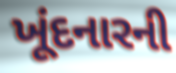
ખૂંદનારની